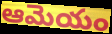
ఆమెయం